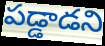
పడ్డాడని